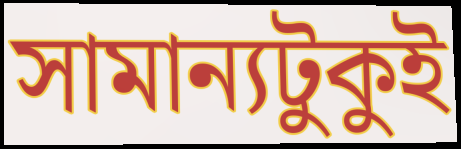
সামান্যটুকুই